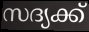
സദ്യക്ക്